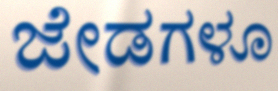
ಜೇಡಗಳೂ